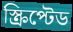
স্ক্রিপ্টেড